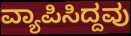
ವ್ಯಾಪಿಸಿದ್ದವು